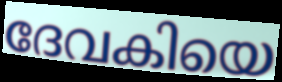
ദേവകിയെ